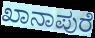
ಖಾನಾಪುರೆ